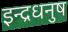
इन्द्रधनुष